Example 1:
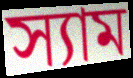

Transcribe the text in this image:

স্যাম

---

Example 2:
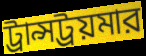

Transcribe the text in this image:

ট্রান্সট্রয়মার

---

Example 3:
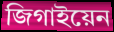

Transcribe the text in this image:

জিগাইয়েন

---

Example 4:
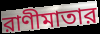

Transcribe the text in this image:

রাণীমাতার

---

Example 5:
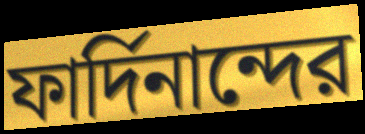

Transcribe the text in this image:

ফার্দিনান্দের